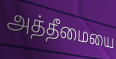
அத்தீமையை